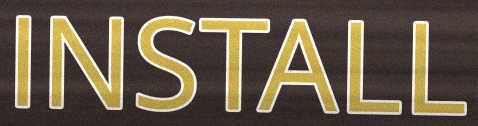
INSTALL